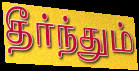
தீர்ந்தும்